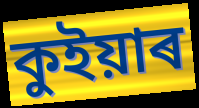
কুইয়াৰ